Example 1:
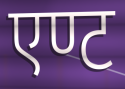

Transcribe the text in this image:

एण्ट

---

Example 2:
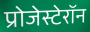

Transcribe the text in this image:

प्रोजेस्टेरॉन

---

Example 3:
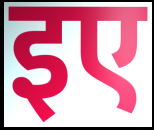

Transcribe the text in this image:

इए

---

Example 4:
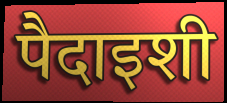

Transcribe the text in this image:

पैदाइशी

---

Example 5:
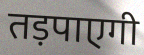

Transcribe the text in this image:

तड़पाएगी